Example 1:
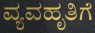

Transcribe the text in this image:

ವ್ಯವಹೃತಿಗೆ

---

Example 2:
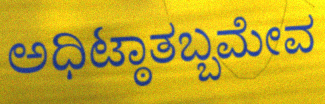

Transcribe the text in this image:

ಅಧಿಟ್ಠಾತಬ್ಬಮೇವ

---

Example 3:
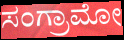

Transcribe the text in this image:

ಸಂಗ್ರಾಮೋ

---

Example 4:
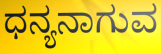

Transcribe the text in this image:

ಧನ್ಯನಾಗುವ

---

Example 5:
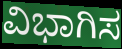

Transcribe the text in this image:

ವಿಭಾಗಿಸ